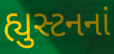
હ્યુસ્ટનનાં